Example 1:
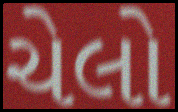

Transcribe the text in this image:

ચેલો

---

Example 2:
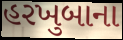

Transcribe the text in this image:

હરખુબાના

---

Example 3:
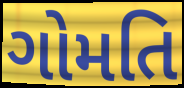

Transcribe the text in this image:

ગોમતિ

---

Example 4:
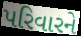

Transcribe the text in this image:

પરિવારને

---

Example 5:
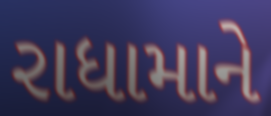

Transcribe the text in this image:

રાધામાને